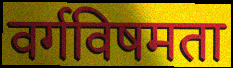
वर्गविषमता